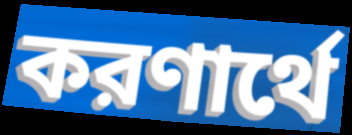
করণার্থে